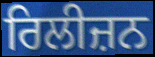
ਰਿਲੀਜ਼ਨ